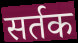
सर्तक